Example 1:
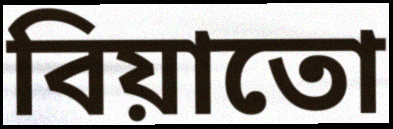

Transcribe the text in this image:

বিয়াতো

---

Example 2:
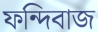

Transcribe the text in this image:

ফন্দিবাজ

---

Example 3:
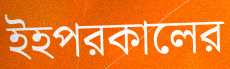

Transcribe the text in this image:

ইহপরকালের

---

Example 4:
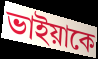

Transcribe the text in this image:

ভাইয়াকে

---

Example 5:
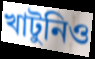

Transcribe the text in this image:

খাটুনিও